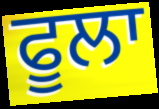
ਫੂਲਾ